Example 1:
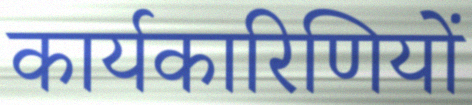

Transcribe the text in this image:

कार्यकारिणियों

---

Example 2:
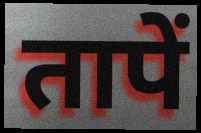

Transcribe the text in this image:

तापें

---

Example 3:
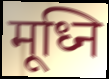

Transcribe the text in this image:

मूध्नि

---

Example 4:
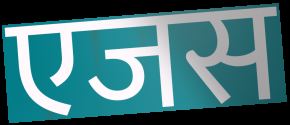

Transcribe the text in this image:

एजस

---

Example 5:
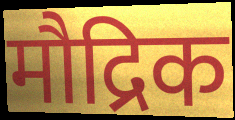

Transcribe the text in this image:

मौद्रिक